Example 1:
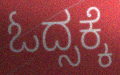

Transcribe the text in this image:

ಓದ್ಸಕ್ಕೆ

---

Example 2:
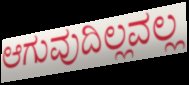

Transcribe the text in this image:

ಆಗುವುದಿಲ್ಲವಲ್ಲ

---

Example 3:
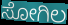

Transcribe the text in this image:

ಸೋಗಿಲ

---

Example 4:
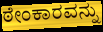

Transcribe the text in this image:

ಠೇಂಕಾರವನ್ನು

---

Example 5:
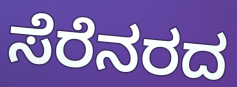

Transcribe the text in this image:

ಸೆರೆನರದ